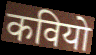
कवियो